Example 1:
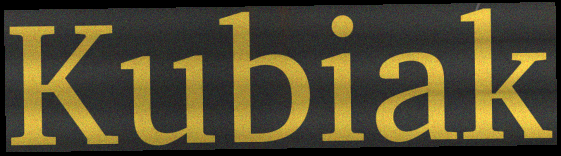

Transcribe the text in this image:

Kubiak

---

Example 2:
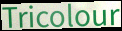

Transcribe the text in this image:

Tricolour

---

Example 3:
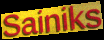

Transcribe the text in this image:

Sainiks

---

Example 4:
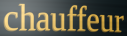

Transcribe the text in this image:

chauffeur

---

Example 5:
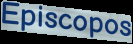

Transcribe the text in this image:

Episcopos